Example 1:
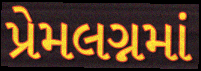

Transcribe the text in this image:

પ્રેમલગ્નમાં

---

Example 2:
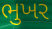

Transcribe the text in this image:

ભુખર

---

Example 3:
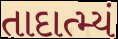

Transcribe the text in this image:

તાદાત્મ્યં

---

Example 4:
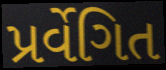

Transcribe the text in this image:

પ્રર્વેગિત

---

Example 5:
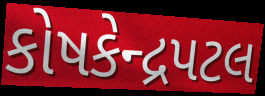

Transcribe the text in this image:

કોષકેન્દ્રપટલ